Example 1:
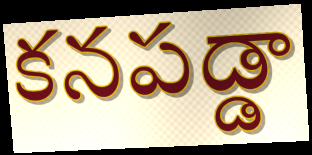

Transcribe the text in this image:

కనపడ్డా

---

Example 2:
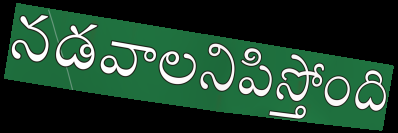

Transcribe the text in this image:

నడవాలనిపిస్తోంది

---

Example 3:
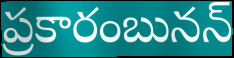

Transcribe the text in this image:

ప్రకారంబునన్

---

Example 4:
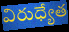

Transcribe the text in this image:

విరుధ్యేత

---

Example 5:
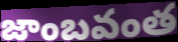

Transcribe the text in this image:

జాంబవంత